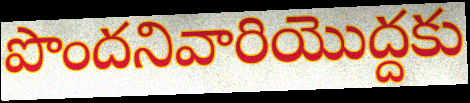
పొందనివారియొద్దకు